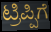
ಟ್ರಿಪ್ಪಿಗೆ